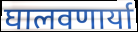
घालवणार्या